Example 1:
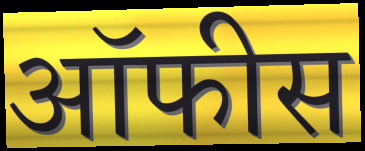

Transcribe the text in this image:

ऑफीस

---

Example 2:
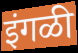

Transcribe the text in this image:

इंगळी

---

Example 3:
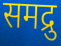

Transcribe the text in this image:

समद्रु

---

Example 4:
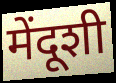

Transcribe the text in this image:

मेंदूशी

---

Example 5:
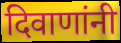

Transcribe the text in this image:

दिवाणांनी